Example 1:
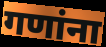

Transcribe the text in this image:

गणांना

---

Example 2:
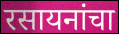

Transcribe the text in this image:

रसायनांचा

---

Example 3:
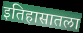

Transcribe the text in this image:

इतिहासातला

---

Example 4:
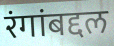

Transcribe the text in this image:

रंगांबद्दल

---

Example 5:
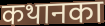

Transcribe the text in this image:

कथानका